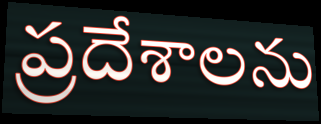
ప్రదేశాలను